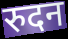
रुदन